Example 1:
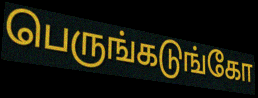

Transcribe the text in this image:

பெருங்கடுங்கோ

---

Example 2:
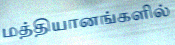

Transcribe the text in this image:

மத்தியானங்களில்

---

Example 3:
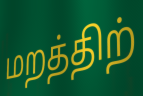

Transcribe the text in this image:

மறத்திற்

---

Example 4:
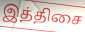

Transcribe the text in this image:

இத்திசை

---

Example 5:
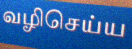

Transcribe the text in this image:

வழிசெய்ய